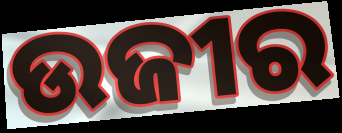
ଉଜୀର